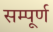
सम्‍पूर्ण